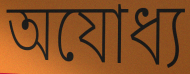
অযোধ্য